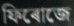
ফিৰোজে